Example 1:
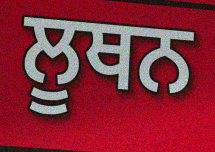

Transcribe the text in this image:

ਲੂਥਨ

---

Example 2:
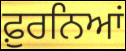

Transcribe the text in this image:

ਫ਼ੁਰਨਿਆਂ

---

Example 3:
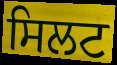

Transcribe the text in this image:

ਸਿਲਟ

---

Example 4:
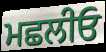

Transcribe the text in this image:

ਮਛਲੀਓ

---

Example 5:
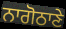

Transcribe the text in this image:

ਨਾਗੋਠਾਣੇ